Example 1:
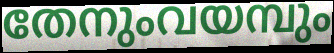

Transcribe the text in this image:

തേനുംവയമ്പും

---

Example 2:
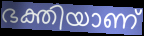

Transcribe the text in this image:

ഭക്തിയാണ്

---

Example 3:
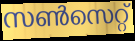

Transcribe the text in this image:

സൺസെറ്റ്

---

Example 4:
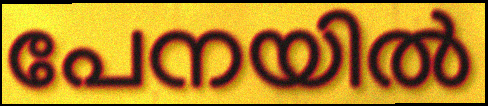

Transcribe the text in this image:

പേനയിൽ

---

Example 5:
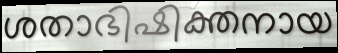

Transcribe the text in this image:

ശതാഭിഷിക്തനായ